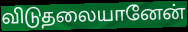
விடுதலையானேன்